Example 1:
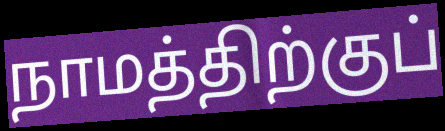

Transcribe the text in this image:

நாமத்திற்குப்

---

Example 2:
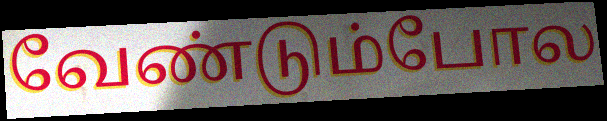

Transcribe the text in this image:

வேண்டும்போல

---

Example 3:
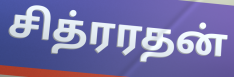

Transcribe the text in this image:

சித்ரரதன்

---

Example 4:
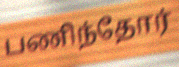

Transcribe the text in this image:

பணிந்தோர்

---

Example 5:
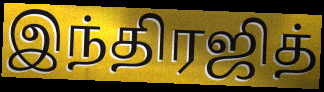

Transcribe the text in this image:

இந்திரஜித்